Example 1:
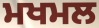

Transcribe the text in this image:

ਮਖਮਲ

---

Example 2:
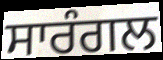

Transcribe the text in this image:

ਸਾਰੰਗਲ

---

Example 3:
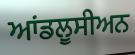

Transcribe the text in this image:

ਆਂਡਲੂਸੀਅਨ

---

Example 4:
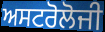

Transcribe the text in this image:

ਅਸਟਰੋਲੋਜੀ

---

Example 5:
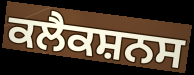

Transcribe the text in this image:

ਕਲੈਕਸ਼ਨਸ